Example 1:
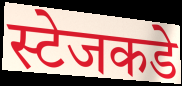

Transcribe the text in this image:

स्टेजकडे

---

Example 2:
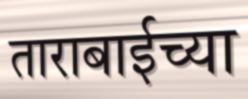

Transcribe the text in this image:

ताराबाईच्या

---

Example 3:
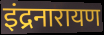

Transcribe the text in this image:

इंद्रनारायण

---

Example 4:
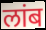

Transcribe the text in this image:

लांब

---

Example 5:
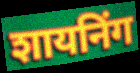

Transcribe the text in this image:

शायनिंग